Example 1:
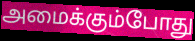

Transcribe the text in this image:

அமைக்கும்போது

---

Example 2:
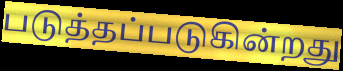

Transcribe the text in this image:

படுத்தப்படுகின்றது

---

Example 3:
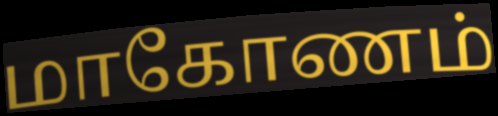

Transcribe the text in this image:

மாகோணம்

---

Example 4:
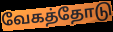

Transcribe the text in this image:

வேகத்தோடு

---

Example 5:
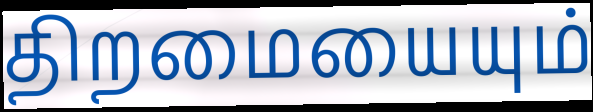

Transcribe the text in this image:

திறமையையும்